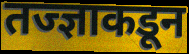
तज्ज्ञाकडून